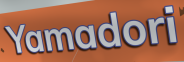
Yamadori